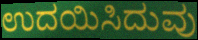
ಉದಯಿಸಿದುವು